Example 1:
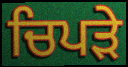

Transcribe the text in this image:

ਚਿਪੜੇ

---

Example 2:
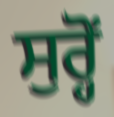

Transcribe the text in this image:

ਸੁਰ੍ਹੋਂ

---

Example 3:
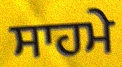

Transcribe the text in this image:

ਸਾਹਮੇ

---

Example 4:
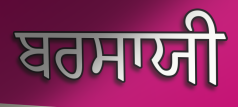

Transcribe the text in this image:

ਬਰਸਾਯੀ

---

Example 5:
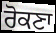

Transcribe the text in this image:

ਰੋਕਣਾ